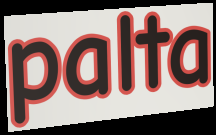
palta